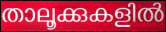
താലൂക്കുകളിൽ